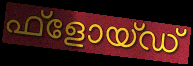
ഫ്ളോയ്ഡ്